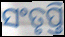
ସଂତୃପ୍ତି